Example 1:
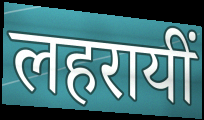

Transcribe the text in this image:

लहरायीं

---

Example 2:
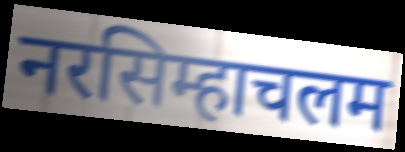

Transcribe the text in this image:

नरसिम्हाचलम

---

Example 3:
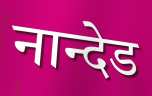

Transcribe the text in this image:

नान्देड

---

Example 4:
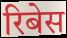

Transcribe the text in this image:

रिबेस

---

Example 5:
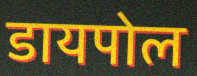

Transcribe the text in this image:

डायपोल